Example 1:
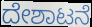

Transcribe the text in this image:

ದೇಶಾಟನೆ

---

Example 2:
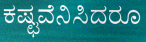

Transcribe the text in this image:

ಕಷ್ಟವೆನಿಸಿದರೂ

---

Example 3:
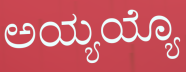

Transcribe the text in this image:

ಅಯ್ಯಯ್ಯೊ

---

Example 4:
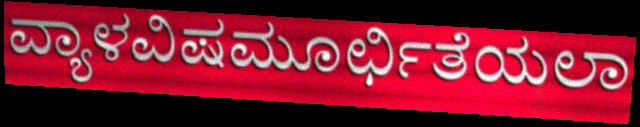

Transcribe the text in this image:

ವ್ಯಾಳವಿಷಮೂರ್ಛಿತೆಯಲಾ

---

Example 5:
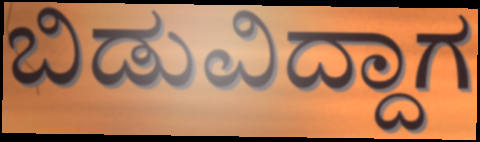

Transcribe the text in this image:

ಬಿಡುವಿದ್ದಾಗ